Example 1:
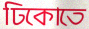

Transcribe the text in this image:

ঢিকোতে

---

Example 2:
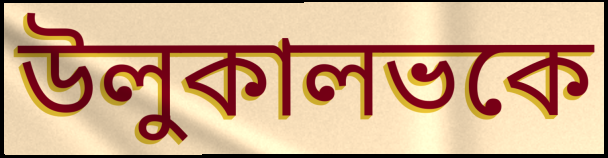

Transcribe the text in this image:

উলুকালভকে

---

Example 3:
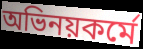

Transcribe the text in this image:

অভিনয়কর্মে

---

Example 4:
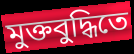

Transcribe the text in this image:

মুক্তবুদ্ধিতে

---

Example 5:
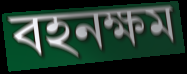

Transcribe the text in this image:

বহনক্ষম